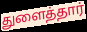
துளைத்தார்